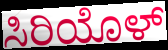
ಸಿರಿಯೊಳ್